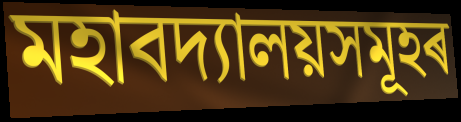
মহাবদ্যালয়সমূহৰ